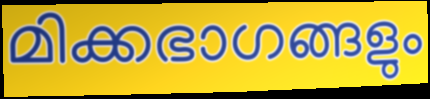
മിക്കഭാഗങ്ങളും